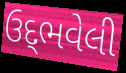
ઉદ્‌ભવેલી